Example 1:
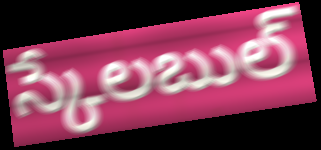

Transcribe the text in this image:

స్కేలబుల్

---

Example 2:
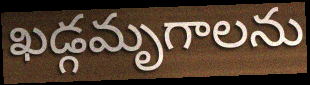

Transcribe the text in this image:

ఖడ్గమృగాలను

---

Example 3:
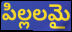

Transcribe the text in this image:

పిల్లలమై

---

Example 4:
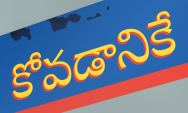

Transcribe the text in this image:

కోవడానికే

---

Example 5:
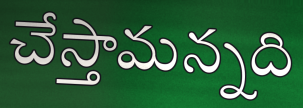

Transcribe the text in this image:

చేస్తామన్నది